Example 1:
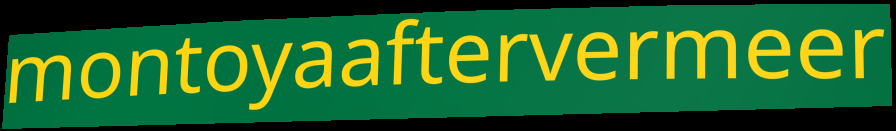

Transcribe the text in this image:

montoyaaftervermeer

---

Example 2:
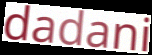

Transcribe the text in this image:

dadani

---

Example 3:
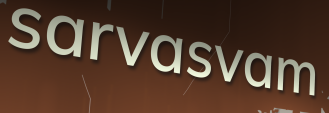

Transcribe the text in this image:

sarvasvam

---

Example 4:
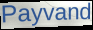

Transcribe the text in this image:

Payvand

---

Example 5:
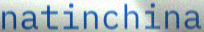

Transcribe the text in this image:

natinchina